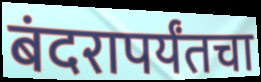
बंदरापर्यंतचा